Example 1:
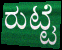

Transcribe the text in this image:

ರುಟ್ಟೆ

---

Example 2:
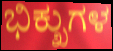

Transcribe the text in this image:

ಭಿಕ್ಖುಗಳ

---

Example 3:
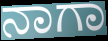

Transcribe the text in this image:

ನಾಗಾ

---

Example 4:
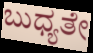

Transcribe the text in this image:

ಬುಧ್ಯತೇ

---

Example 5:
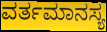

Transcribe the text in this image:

ವರ್ತಮಾನಸ್ಯ